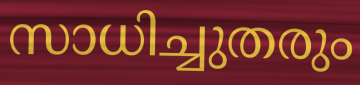
സാധിച്ചുതരും